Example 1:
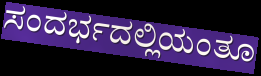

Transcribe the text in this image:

ಸಂದರ್ಭದಲ್ಲಿಯಂತೂ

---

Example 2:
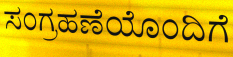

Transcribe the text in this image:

ಸಂಗ್ರಹಣೆಯೊಂದಿಗೆ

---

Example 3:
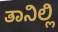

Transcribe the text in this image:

ತಾನಿಲ್ಲಿ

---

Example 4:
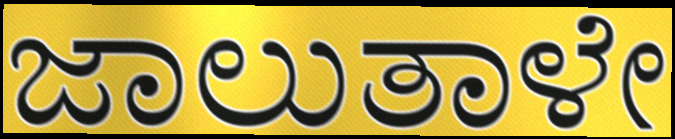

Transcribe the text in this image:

ಜಾಲುತಾಳೇ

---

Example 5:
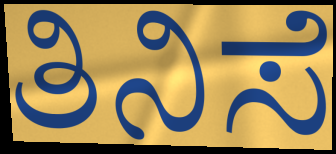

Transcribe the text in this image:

ತಿನಿಸೆ